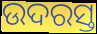
ଉଦରସ୍ତ